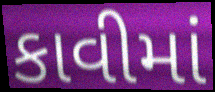
કાવીમાં